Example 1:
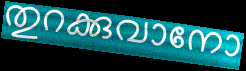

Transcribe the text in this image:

തുറക്കുവാനോ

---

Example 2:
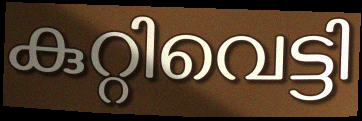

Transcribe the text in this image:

കുറ്റിവെട്ടി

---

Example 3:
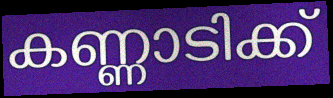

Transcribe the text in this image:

കണ്ണാടിക്ക്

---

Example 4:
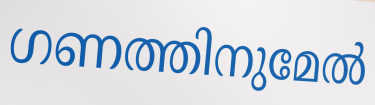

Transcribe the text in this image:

ഗണത്തിനുമേൽ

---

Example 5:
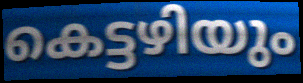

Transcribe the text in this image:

കെട്ടഴിയും